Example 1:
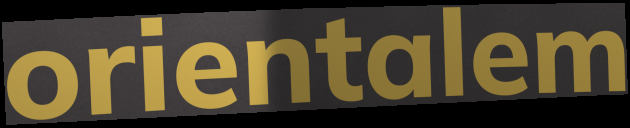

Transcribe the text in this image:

orientalem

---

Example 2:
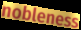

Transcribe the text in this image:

nobleness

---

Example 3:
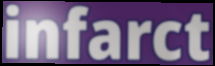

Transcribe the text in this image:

infarct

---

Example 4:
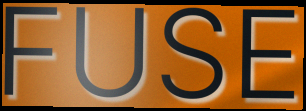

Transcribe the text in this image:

FUSE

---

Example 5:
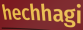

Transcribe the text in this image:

hechhagi